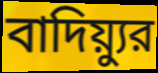
বাদিয়্যুর